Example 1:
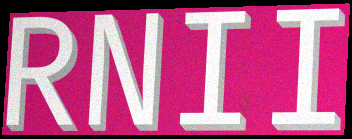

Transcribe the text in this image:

RNII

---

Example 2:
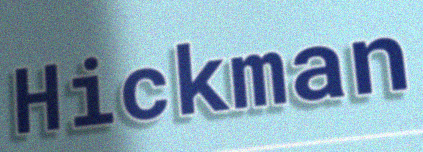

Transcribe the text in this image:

Hickman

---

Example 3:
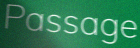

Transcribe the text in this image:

Passage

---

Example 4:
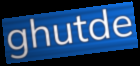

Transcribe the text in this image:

ghutde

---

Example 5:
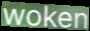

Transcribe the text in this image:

woken